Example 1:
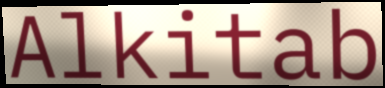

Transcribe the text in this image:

Alkitab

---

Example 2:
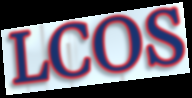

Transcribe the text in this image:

LCOS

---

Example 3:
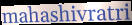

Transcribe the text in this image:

mahashivratri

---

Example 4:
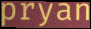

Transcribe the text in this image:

pryan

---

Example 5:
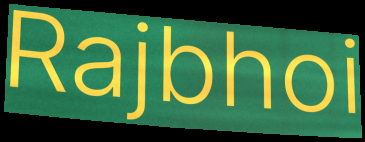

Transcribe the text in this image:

Rajbhoi